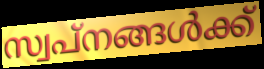
സ്വപ്നങ്ങൾക്ക്